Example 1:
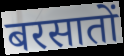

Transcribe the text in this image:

बरसातों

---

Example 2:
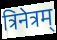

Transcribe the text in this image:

त्रिनेत्रम्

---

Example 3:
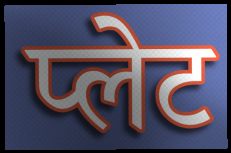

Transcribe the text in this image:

प्लेट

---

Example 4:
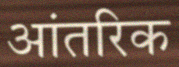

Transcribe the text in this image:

आंतरिक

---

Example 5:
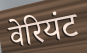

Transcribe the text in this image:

वेरियंट